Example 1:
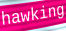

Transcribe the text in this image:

hawking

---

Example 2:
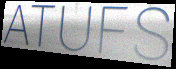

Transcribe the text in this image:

ATUFS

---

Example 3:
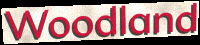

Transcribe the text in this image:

Woodland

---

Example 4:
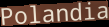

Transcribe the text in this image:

Polandia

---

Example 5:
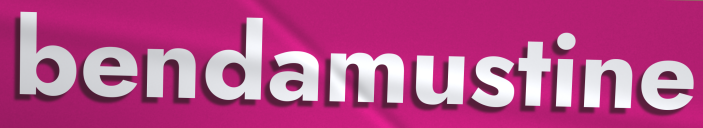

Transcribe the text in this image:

bendamustine